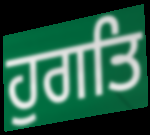
ਹੁਗਤਿ